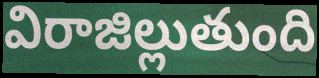
విరాజిల్లుతుంది